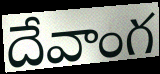
దేవాంగ